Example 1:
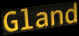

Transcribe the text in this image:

Gland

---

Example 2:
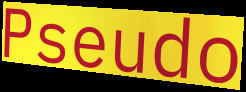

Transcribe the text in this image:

Pseudo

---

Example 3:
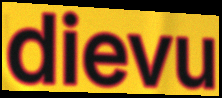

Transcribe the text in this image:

dievu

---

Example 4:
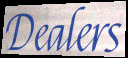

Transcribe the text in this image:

Dealers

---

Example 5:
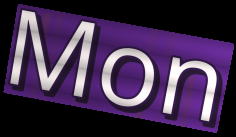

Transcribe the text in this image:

Mon